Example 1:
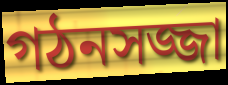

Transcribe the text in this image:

গঠনসজ্জা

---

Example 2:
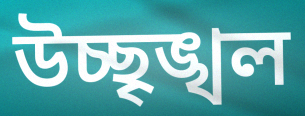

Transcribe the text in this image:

উচ্ছৃঙ্খল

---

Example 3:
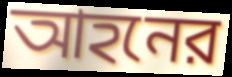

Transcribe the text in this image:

আহনের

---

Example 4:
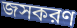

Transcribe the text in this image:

জসকরণ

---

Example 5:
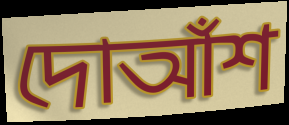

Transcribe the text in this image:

দোআঁশ